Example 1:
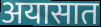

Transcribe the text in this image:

अयासात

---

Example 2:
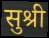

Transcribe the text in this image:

सुश्री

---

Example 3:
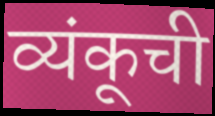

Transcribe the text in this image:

व्यंकूची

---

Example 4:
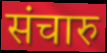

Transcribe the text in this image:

संचारु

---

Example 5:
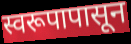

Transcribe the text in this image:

स्वरूपापासून